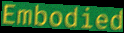
Embodied